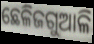
ଛେଳିଜଗୁଆଳି